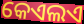
କେଏଲଏ